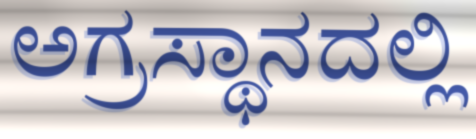
ಅಗ್ರಸ್ಥಾನದಲ್ಲಿ